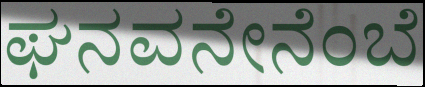
ಘನವನೇನೆಂಬೆ